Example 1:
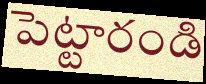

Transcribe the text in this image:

పెట్టారండి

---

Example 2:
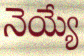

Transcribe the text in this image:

నెయ్యే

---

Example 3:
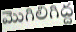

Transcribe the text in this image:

మొగిలిగిద్ద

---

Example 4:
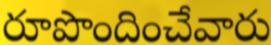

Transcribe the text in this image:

రూపొందించేవారు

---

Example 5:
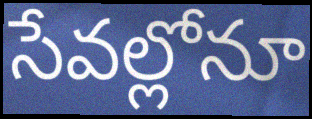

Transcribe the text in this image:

సేవల్లోనూ